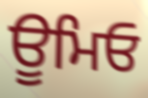
ਊਮਿਓ